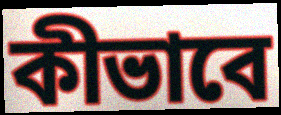
কীভাবে